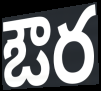
ఔర